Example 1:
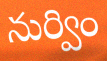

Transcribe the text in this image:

నుర్విం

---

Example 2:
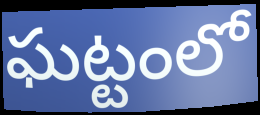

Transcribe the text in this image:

ఘట్టంలో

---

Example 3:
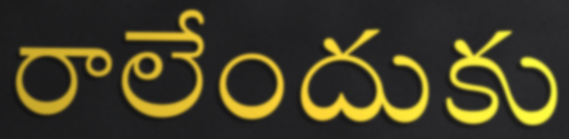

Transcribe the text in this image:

రాలేందుకు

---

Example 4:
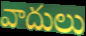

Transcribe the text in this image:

వాదులు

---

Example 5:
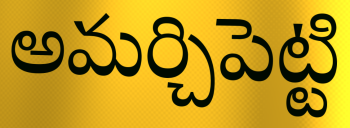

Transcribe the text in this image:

అమర్చిపెట్టి